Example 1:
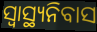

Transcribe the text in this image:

ସ୍ୱାସ୍ଥ୍ୟନିବାସ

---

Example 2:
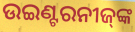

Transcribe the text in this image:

ଉଇଣ୍ଟରନୀଜ୍‌ଙ୍କ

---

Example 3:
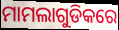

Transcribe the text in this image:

ମାମଲାଗୁଡିକରେ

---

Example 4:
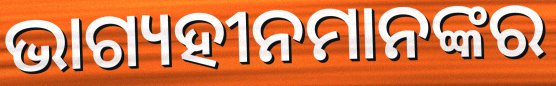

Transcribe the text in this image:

ଭାଗ୍ୟହୀନମାନଙ୍କର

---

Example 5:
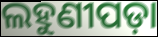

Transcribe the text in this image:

ଲହୁଣୀପଡ଼ା